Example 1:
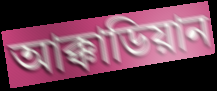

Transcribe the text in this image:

আক্কাডিয়ান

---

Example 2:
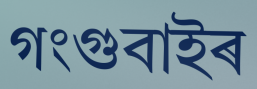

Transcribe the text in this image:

গংগুবাইৰ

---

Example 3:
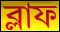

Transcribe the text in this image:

ব্লাফ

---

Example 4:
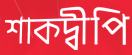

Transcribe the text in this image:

শাকদ্বীপি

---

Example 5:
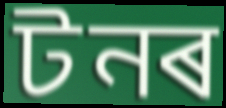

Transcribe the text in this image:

টনৰ